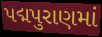
પદ્મપુરાણમાં